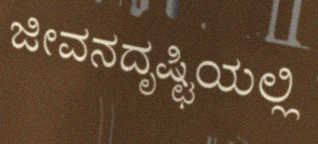
ಜೀವನದೃಷ್ಟಿಯಲ್ಲಿ